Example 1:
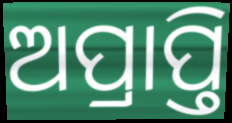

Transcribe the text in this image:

ଅପ୍ରାପ୍ତି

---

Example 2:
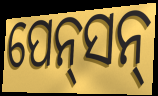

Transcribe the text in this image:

ପେନ୍‍ସନ୍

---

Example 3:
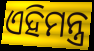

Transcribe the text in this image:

ଏହିମନ୍ତ୍ର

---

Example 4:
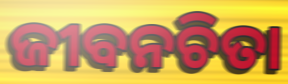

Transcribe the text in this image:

ଜୀବନଚିତା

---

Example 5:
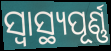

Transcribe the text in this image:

ସ୍ବାସ୍ଥ୍ୟପୂର୍ଣ୍ଣ